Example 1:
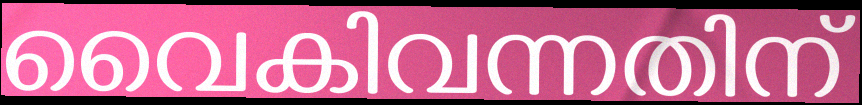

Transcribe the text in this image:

വൈകിവന്നതിന്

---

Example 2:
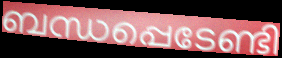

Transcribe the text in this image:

ബന്ധപ്പെടേണ്ടി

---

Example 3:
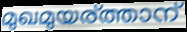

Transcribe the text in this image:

മുഖമുയര്ത്താന്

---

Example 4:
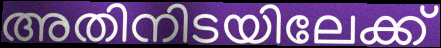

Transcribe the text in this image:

അതിനിടയിലേക്ക്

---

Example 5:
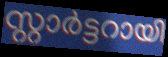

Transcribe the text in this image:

സ്റ്റാർട്ടറായി